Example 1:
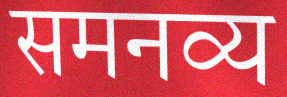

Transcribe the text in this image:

समनव्य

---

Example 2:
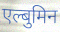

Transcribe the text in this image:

एल्बुमिन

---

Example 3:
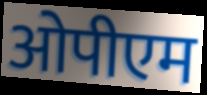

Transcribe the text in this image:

ओपीएम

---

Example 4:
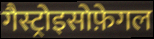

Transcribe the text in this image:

गैस्ट्रोइसोफ़ेगल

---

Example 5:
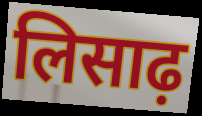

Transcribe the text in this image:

लिसाढ़